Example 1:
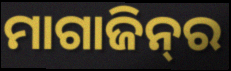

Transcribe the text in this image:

ମାଗାଜିନ୍‍ର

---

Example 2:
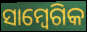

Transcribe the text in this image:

ସାମ୍ବେଗିକ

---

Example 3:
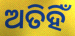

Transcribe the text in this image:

ଅତିହିଁ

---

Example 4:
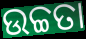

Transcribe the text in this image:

ଉଚ୍ଚତା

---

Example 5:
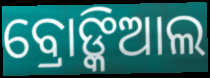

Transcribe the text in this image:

ବ୍ରୋଙ୍କିଆଲ